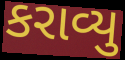
કરાવ્યુ